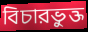
বিচারভুক্ত